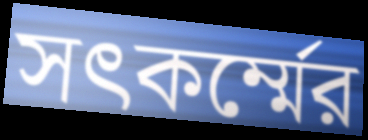
সৎকর্ম্মের